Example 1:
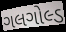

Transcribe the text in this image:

ગલગોલ્ડ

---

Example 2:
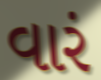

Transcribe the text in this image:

વારં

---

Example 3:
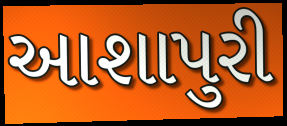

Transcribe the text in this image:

આશાપુરી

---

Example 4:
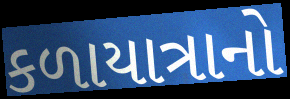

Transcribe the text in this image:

કળાયાત્રાનો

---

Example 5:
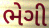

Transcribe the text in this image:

ભેગી